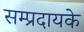
सम्प्रदायके